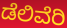
ಡೆಲಿವೆರಿ